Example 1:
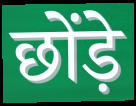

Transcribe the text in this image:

छोंड़े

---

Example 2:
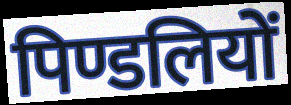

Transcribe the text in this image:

पिण्डलियों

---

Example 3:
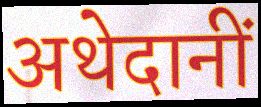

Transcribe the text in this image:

अथेदानीं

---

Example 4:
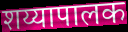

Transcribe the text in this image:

शय्यापालक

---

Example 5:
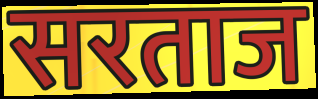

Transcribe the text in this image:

सरताज